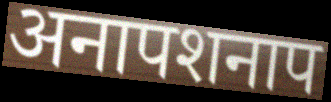
अनापशनाप